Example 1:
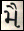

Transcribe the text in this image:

મૈ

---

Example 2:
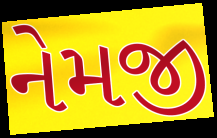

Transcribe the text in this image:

નેમજી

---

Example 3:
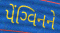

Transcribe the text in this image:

પેંગ્વિનને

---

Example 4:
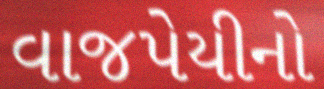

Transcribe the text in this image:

વાજપેયીનો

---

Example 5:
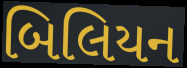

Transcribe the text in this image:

બિલિયન